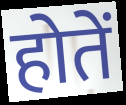
होतें